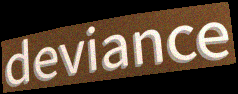
deviance